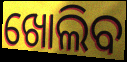
ଖୋଲିବ